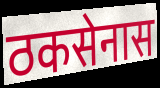
ठकसेनास